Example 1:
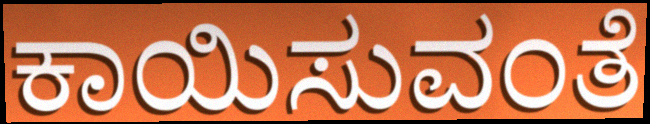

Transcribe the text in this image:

ಕಾಯಿಸುವಂತೆ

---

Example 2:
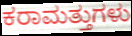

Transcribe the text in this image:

ಕರಾಮತ್ತುಗಳು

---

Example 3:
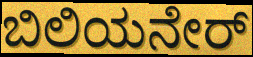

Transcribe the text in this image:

ಬಿಲಿಯನೇರ್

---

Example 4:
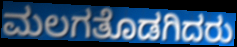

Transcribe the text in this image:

ಮಲಗತೊಡಗಿದರು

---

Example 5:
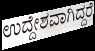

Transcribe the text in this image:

ಉದ್ದೇಶವಾಗಿದ್ದರೆ